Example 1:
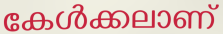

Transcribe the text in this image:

കേൾക്കലാണ്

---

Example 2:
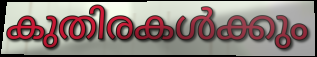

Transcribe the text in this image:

കുതിരകൾക്കും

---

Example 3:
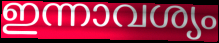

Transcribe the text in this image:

ഇന്നാവശ്യം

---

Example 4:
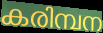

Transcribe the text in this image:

കരിമ്പന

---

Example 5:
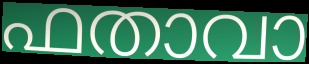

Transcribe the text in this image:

ഫതാവാ